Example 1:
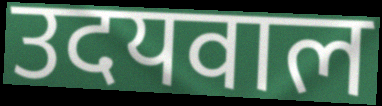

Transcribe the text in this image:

उदयवाल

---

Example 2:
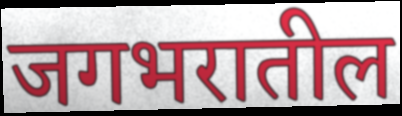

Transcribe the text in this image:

जगभरातील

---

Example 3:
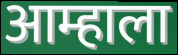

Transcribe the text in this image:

आम्हाला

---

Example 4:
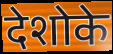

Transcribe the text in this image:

देशोके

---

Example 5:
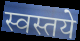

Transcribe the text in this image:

स्वस्तये